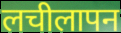
लचीलापन